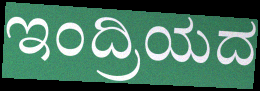
ಇಂದ್ರಿಯದ